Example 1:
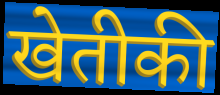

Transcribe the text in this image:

खेतीकी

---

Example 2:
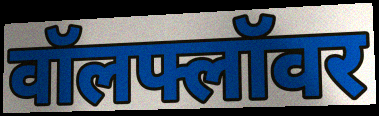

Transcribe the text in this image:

वॉलफ्लॉवर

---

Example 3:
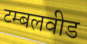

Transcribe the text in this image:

टम्बलवीड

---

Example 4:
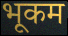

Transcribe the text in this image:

भूकम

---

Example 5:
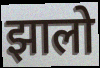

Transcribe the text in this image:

झालो